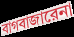
বাগবাজারেনা